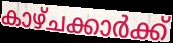
കാഴ്ചക്കാർക്ക്